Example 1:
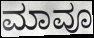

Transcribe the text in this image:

ಮಾವೂ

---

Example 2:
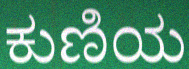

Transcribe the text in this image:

ಕುಣಿಯ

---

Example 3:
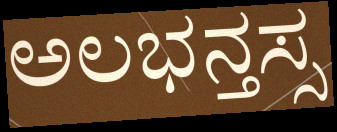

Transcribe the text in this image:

ಅಲಭನ್ತಸ್ಸ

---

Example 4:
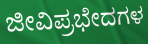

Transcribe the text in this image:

ಜೀವಿಪ್ರಭೇದಗಳ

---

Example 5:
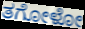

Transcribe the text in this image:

ತಗೋಳೋ